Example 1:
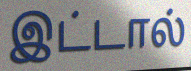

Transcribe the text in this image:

இட்டால்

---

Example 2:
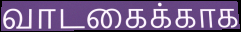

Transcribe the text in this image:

வாடகைக்காக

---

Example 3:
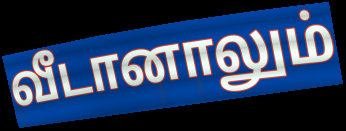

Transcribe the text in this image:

வீடானாலும்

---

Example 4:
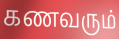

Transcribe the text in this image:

கணவரும்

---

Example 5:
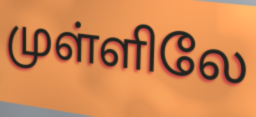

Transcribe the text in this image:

முள்ளிலே